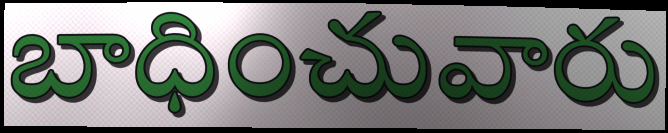
బాధించువారు